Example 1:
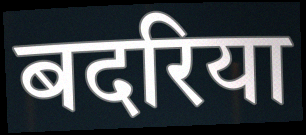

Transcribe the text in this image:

बदरिया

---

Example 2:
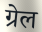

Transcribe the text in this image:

ग्रेल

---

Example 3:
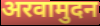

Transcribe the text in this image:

अरवामुदन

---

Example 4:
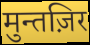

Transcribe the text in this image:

मुन्तज़िर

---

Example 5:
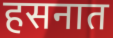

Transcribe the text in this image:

हसनात